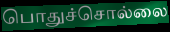
பொதுச்சொல்லை